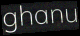
ghanu